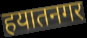
हयातनगर